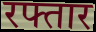
रफ्‍तार